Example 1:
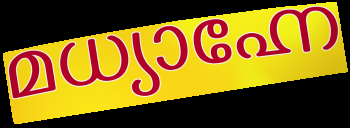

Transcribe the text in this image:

മധ്യാഹ്നേ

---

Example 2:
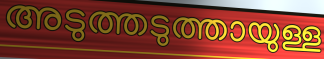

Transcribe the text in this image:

അടുത്തടുത്തായുള്ള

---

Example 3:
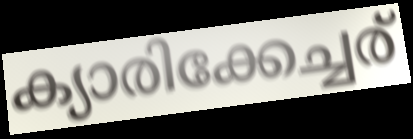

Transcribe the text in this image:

ക്യാരിക്കേച്ചര്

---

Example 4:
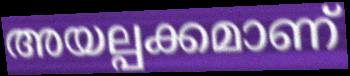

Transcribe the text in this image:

അയല്പക്കമാണ്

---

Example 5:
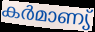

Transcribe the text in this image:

കർമാണ്യ്